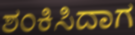
ಶಂಕಿಸಿದಾಗ